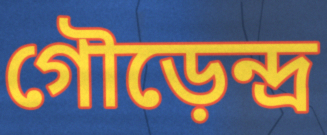
গৌড়েন্দ্র